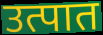
उत्पात